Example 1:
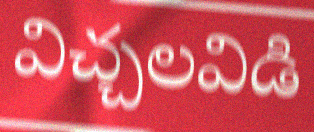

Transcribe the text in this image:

విచ్చలవిడి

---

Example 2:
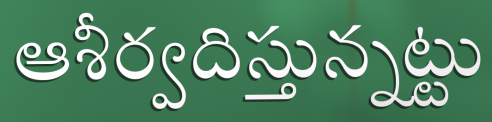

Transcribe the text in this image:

ఆశీర్వదిస్తున్నట్టు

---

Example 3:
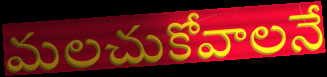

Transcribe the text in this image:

మలచుకోవాలనే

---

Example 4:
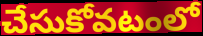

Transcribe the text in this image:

చేసుకోవటంలో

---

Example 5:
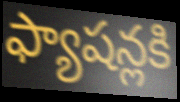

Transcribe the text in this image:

ఫ్యాషన్లకి